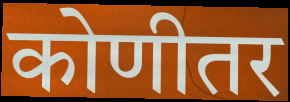
कोणीतर